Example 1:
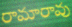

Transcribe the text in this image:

రామారావు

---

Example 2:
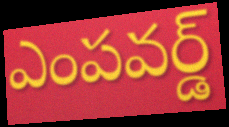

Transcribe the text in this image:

ఎంపవర్డ్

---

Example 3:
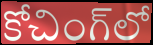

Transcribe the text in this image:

కోచింగ్‌లో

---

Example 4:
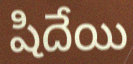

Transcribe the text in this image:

షిదేయి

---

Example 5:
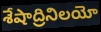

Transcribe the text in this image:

శేషాద్రినిలయో